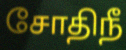
சோதிநீ